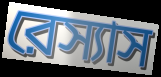
রেস্যাস